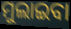
ମୁଲାଇବା